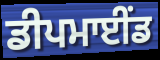
ਡੀਪਮਾਈਂਡ